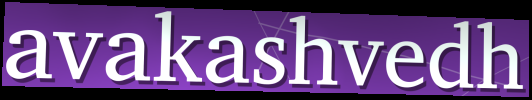
avakashvedh